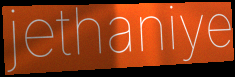
jethaniye